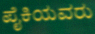
ಪೈಕಿಯವರು